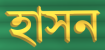
হাসন